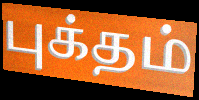
புக்தம்